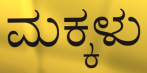
ಮಕ್ಕಳು